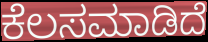
ಕೆಲಸಮಾಡಿದೆ